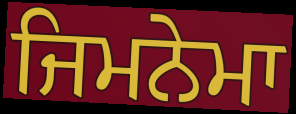
ਜਿਮਨੇਮਾ